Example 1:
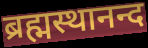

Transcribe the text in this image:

ब्रह्मस्थानन्द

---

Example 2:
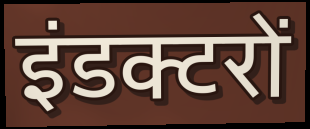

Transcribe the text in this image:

इंडक्टरों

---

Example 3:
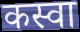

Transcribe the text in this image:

कस्वा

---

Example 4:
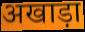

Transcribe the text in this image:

अखाड़ा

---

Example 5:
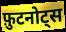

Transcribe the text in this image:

फ़ुटनोट्स